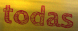
todas